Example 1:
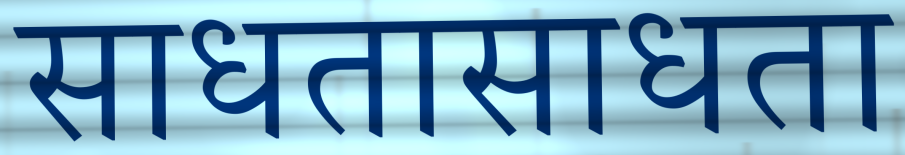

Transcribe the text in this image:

साधतासाधता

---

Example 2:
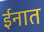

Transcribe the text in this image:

ईनात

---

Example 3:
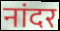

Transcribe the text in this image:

नांदर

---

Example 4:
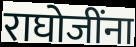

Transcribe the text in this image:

राघोजींना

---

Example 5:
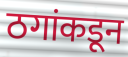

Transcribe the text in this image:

ठगांकडून